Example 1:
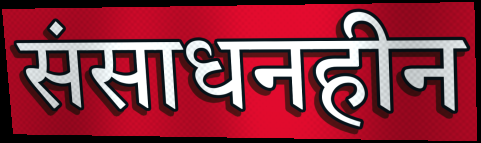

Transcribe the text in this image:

संसाधनहीन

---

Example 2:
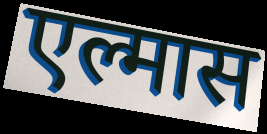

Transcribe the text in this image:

एल्मास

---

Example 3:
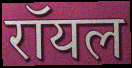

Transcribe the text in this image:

रॉयल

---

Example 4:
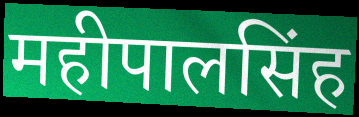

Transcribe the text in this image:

महीपालसिंह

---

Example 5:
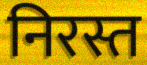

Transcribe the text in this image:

निरस्त